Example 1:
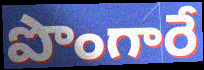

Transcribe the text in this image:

పొంగారే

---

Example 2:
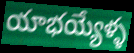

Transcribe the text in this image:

యాభయ్యేళ్ళ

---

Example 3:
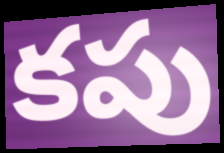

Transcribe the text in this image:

కపు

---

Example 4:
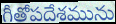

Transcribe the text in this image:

గీతోపదేశమును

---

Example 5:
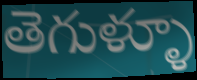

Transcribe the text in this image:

తెగుళ్ళూ